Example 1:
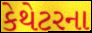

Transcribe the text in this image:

કેથેટરના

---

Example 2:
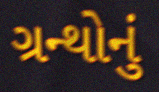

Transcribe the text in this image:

ગ્રન્થોનું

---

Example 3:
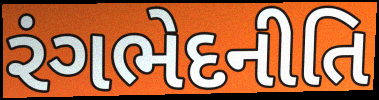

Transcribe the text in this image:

રંગભેદનીતિ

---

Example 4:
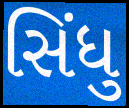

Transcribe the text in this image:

સિંધુ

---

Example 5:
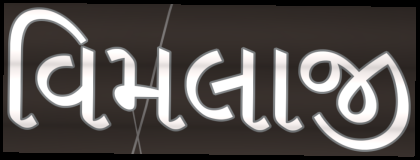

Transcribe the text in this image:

વિમલાજી